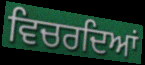
ਵਿਚਰਦਿਆਂ